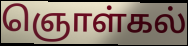
ஞொள்கல்